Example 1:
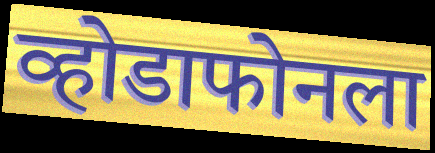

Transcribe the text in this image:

व्होडाफोनला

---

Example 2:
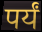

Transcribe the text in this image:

पर्यं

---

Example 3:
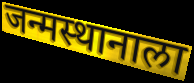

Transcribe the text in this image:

जन्मस्थानाला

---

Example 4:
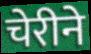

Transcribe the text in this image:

चेरीने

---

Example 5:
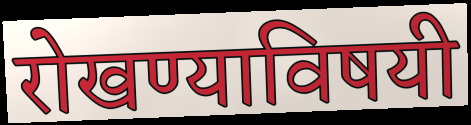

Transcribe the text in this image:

रोखण्याविषयी